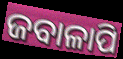
ଜବାଳାପି